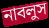
নাবলুস